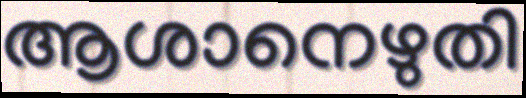
ആശാനെഴുതി